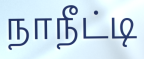
நாநீட்டி